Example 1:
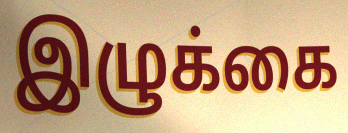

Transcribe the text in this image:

இழுக்கை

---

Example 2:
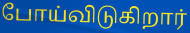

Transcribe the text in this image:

போய்விடுகிறார்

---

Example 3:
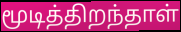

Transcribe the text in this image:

மூடித்திறந்தாள்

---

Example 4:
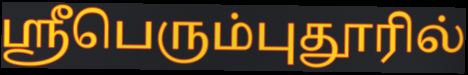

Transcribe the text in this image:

ஸ்ரீபெரும்புதூரில்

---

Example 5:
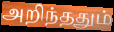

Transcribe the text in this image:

அறிந்ததும்